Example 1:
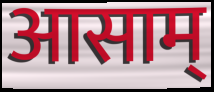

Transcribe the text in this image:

आसाम्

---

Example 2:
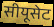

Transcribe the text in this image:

सीयूसेट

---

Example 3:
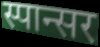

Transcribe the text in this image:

स्पान्सर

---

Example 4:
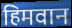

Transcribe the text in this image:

हिमवान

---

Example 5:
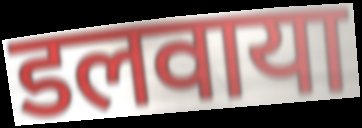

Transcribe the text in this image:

डलवाया